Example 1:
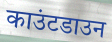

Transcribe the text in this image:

काउंटडाउन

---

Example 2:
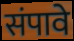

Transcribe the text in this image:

संपावे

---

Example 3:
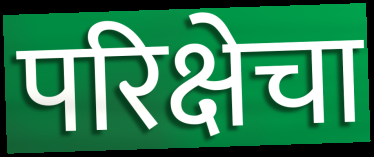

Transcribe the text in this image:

परिक्षेचा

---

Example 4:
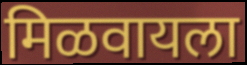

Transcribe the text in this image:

मिळवायला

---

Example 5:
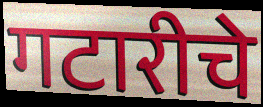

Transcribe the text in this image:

गटारीचे